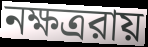
নক্ষত্ররায়